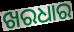
ଖରଧାର